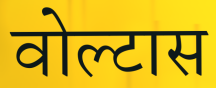
वोल्टास